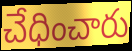
చేధించారు